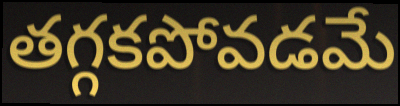
తగ్గకపోవడమే